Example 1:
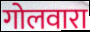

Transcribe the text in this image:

गोलवारा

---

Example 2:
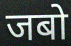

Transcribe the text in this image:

जबो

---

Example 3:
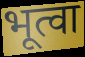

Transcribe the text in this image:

भूत्वा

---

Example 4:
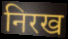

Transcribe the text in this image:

निरख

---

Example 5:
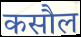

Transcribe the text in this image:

कसौल